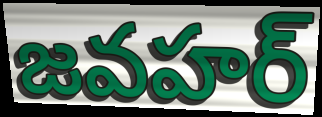
జవహర్